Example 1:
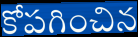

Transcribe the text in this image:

కోపగించిన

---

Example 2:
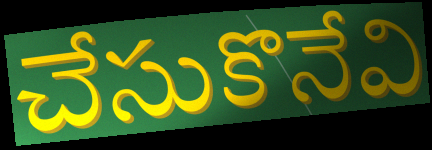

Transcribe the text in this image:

చేసుకొనేవి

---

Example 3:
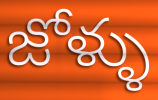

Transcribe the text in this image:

జోళ్ళు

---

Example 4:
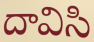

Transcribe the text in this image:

దావిసి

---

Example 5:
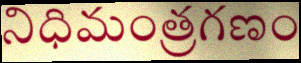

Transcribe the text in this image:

నిధిమంత్రగణం